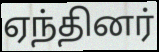
ஏந்தினர்